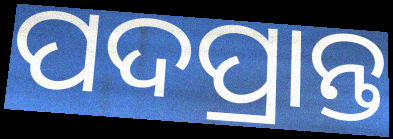
ପଦପ୍ରାନ୍ତ